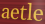
aetle